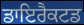
ਡਾਇਰੈਕਟਡ